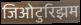
जिओटुरिझम